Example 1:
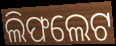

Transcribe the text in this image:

ଲିଫଲେଟ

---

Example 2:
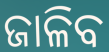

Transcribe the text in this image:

ଜାଳିବ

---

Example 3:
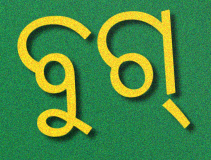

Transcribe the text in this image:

ବୁଗ୍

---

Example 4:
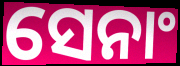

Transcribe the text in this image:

ସେନାଂ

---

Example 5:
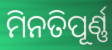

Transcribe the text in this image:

ମିନତିପୂର୍ଣ୍ଣ